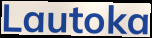
Lautoka